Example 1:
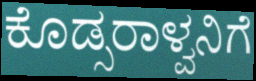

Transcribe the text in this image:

ಕೊಡ್ಸರಾಳ್ವನಿಗೆ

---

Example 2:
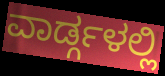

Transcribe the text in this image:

ವಾರ್ಡ್ಗಳಲ್ಲಿ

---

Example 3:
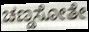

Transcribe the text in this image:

ಚಣ್ಡಸೋತೇ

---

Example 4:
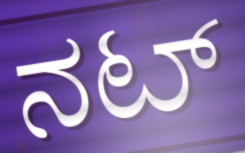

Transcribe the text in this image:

ನಟ್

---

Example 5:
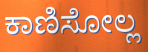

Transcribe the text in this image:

ಕಾಣಿಸೋಲ್ಲ